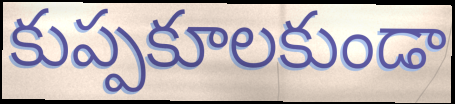
కుప్పకూలకుండా